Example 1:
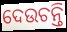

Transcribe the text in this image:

ଦେଉଚନ୍ତି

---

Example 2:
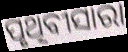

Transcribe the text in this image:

ପୃଥିବୀସାରା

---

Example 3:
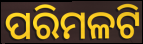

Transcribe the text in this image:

ପରିମଳଟି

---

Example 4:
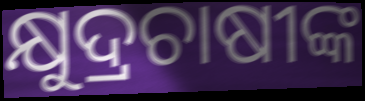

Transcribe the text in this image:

କ୍ଷୁଦ୍ରଚାଷୀଙ୍କ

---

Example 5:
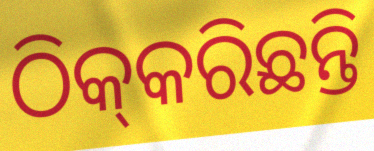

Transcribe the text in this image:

ଠିକ୍‌କରିଛନ୍ତି